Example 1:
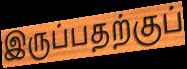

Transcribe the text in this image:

இருப்பதற்குப்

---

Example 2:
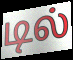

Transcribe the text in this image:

டில்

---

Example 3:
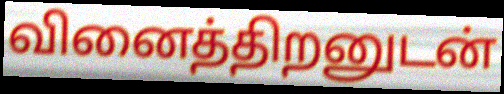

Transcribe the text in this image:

வினைத்திறனுடன்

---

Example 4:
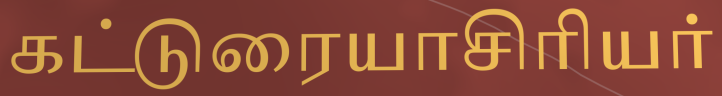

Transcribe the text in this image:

கட்டுரையாசிரியர்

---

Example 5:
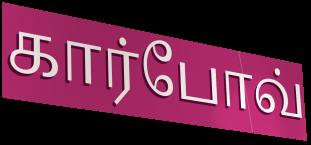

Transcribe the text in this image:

கார்போவ்